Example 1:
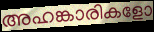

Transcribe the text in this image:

അഹങ്കാരികളോ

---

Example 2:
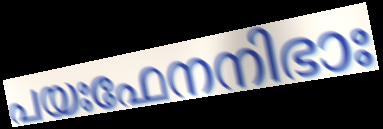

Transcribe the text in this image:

പയഃഫേനനിഭാഃ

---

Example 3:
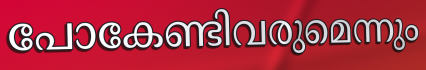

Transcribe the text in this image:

പോകേണ്ടിവരുമെന്നും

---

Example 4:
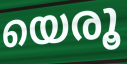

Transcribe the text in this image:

യെരൂ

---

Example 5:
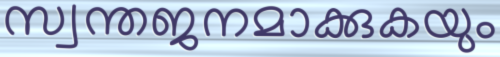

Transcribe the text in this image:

സ്വന്തജനമാക്കുകയും